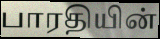
பாரதியின்